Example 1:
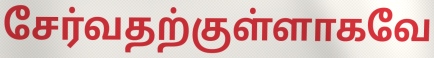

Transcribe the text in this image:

சேர்வதற்குள்ளாகவே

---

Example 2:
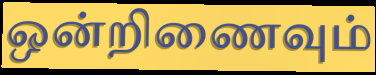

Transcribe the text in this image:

ஒன்றிணைவும்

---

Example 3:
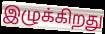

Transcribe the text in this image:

இழுக்கிறது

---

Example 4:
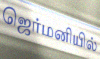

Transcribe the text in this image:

ஜெர்மனியில்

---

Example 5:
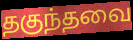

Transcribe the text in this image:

தகுந்தவை